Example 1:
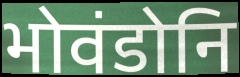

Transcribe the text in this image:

भोवंडोनि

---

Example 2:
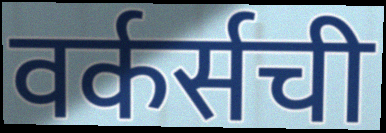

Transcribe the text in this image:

वर्कर्सची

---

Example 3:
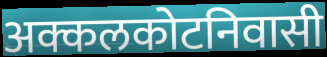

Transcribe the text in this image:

अक्कलकोटनिवासी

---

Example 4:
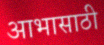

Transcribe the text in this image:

आभासाठी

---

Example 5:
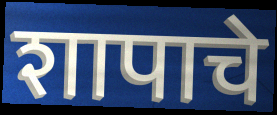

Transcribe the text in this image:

शापाचे